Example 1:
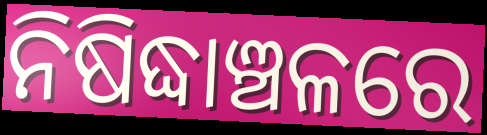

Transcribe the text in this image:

ନିଷିଦ୍ଧାଞ୍ଚଳରେ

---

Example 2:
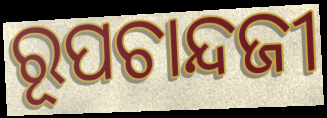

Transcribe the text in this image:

ରୂପଚାନ୍ଦଜୀ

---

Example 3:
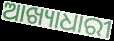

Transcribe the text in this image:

ଆଖ୍ୟାଧାରୀ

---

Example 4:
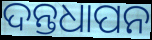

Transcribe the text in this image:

ଦନ୍ତଧାପନ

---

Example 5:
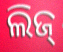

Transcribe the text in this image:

ଲିଜ୍